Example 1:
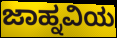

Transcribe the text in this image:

ಜಾಹ್ನವಿಯ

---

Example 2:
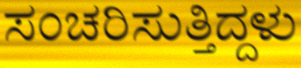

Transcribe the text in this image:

ಸಂಚರಿಸುತ್ತಿದ್ದಳು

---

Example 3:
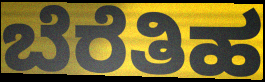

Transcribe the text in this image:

ಬೆರೆತಿಹ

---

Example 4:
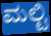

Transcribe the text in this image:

ಮಲ್ಟಿ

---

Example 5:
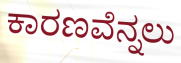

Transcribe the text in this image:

ಕಾರಣವೆನ್ನಲು